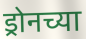
ड्रोनच्या